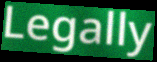
Legally